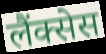
लैंक्सेस